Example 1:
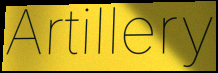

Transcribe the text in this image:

Artillery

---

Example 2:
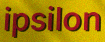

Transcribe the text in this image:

ipsilon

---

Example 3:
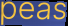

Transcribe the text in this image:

peas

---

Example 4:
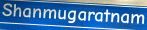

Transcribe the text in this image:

Shanmugaratnam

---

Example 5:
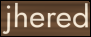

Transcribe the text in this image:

jhered